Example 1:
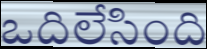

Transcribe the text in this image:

ఒదిలేసింది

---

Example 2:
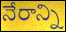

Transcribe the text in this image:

నేరాన్ని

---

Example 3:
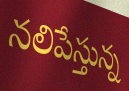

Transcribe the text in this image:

నలిపేస్తున్న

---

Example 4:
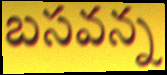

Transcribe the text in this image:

బసవన్న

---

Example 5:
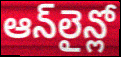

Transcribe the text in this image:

ఆన్‌లైన్లో